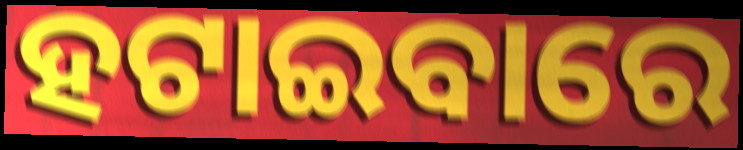
ହଟାଇବାରେ